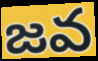
జవ